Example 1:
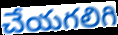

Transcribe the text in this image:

చేయగలిగి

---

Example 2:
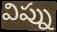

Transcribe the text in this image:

విప్ను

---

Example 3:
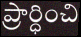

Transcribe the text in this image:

ప్రార్ధించి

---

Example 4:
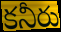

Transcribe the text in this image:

కనీరు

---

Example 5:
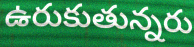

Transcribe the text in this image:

ఉరుకుతున్నరు